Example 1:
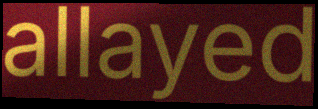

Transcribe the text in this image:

allayed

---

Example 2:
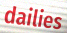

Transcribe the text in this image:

dailies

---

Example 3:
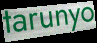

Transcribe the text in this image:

tarunyo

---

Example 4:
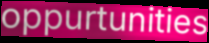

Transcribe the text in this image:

oppurtunities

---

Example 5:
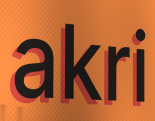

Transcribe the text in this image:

akri